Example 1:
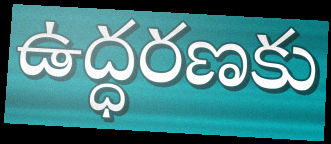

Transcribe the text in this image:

ఉద్ధరణకు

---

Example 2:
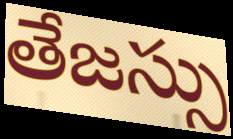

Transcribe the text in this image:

తేజస్సు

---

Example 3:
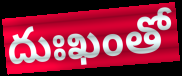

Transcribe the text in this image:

దుఃఖంతో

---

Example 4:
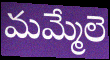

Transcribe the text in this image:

మమ్మేలె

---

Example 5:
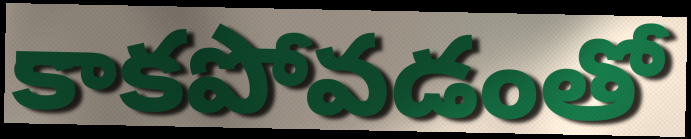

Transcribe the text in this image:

కాకపోవడంతో